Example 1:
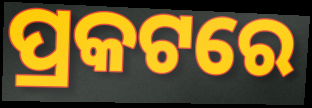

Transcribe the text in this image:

ପ୍ରକଟରେ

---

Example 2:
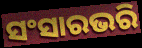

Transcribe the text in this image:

ସଂସାରଭରି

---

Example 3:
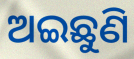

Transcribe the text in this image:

ଅଇଛୁଣି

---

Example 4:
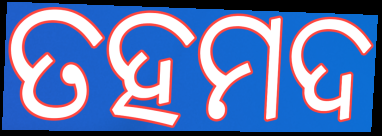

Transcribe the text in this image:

ତହମଦ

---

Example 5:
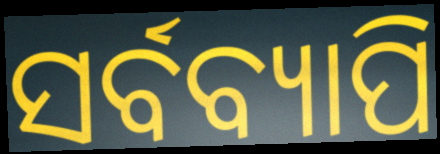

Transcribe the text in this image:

ସର୍ବବ୍ୟାପି